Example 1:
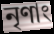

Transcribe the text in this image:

নৃণাং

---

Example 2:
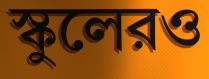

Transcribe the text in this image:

স্কুলেরও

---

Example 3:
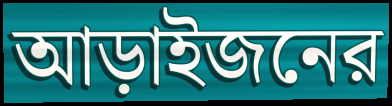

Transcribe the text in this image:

আড়াইজনের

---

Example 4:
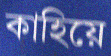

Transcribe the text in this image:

কাহিয়ে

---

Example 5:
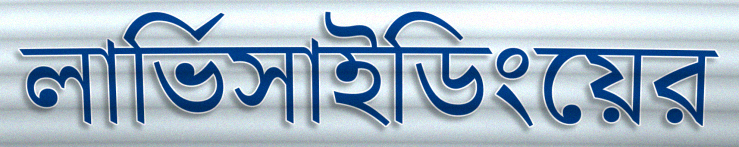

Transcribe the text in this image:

লার্ভিসাইডিংয়ের